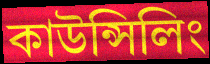
কাউন্সিলিং